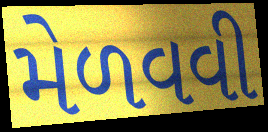
મેળવવી